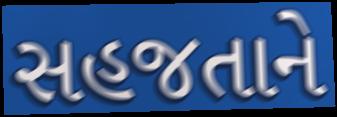
સહજતાને